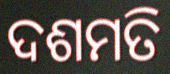
ଦଶମତି